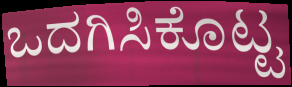
ಒದಗಿಸಿಕೊಟ್ಟ